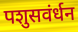
पशुसवंर्धन